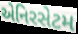
એનિરસેટમ